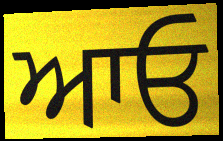
ਆਓ